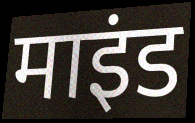
माइंड